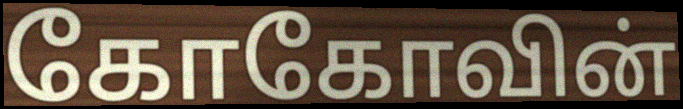
கோகோவின்